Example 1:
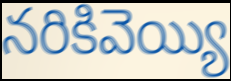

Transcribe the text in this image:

నరికివెయ్యి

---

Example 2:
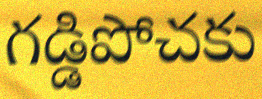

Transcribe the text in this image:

గడ్డిపోచకు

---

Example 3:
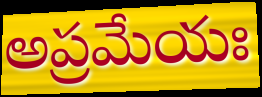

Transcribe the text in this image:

అప్రమేయః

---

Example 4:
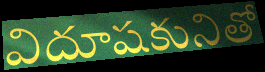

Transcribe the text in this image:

విదూషకునితో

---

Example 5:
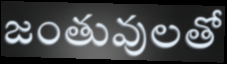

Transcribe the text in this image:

జంతువులతో